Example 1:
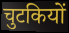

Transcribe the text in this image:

चुटकियों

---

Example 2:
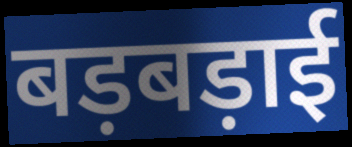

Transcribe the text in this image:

बड़बड़ाई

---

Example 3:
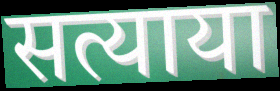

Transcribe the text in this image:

सत्याया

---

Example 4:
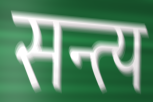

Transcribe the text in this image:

सन्त्य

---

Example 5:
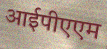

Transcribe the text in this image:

आईपीएएम